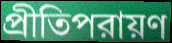
প্রীতিপরায়ণ